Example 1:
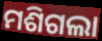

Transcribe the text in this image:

ମଶିଗଲା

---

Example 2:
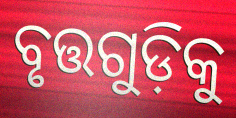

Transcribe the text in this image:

ବୃତ୍ତଗୁଡ଼ିକୁ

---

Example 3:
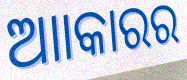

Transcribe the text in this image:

ଆାକାରର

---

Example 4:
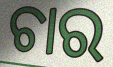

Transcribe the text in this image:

ଚାର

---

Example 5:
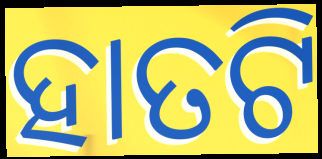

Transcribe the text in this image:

ହାତଟି